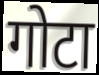
गोटा